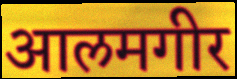
आलमगीर